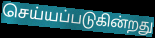
செய்யப்படுகின்றது